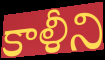
కాళీని